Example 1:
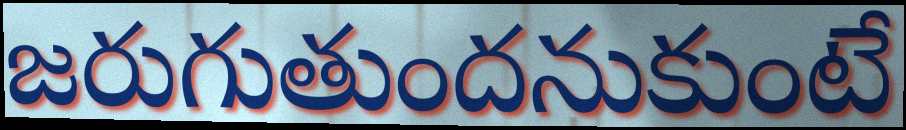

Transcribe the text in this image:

జరుగుతుందనుకుంటే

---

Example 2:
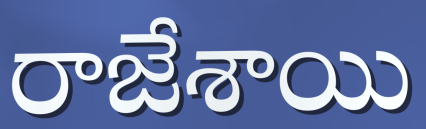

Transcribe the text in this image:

రాజేశాయి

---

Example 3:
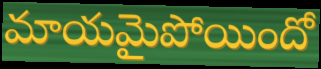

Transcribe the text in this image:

మాయమైపోయిందో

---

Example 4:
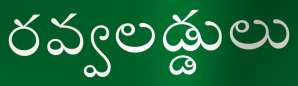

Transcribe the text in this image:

రవ్వలడ్డులు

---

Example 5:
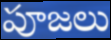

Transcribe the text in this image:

పూజలు